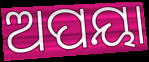
ଅପୟା